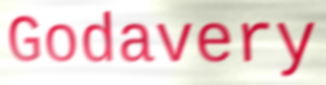
Godavery